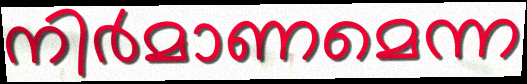
നിർമാണമെന്ന